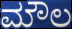
ಮೌಲ